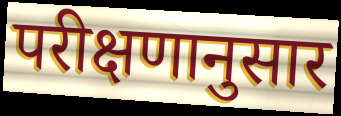
परीक्षणानुसार